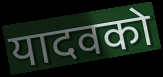
यादवको